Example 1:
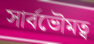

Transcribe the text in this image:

সাৰ্বভৌমত্ব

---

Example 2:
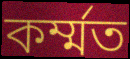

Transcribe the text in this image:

কৰ্ম্মত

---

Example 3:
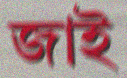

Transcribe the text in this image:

জাই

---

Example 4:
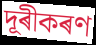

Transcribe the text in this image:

দূৰীকৰণ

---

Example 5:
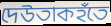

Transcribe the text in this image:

দেউতাকহঁতে